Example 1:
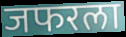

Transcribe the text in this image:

जफरला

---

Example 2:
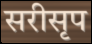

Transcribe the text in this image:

सरीसृप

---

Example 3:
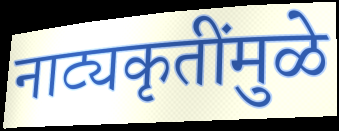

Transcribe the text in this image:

नाट्यकृतींमुळे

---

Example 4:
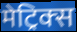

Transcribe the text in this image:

मेट्रिक्‍स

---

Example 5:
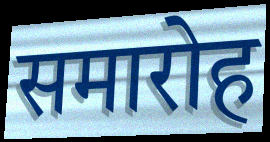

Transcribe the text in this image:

समारोह